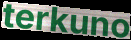
terkuno